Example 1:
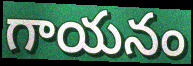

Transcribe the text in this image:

గాయనం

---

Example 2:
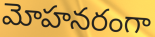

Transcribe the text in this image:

మోహనరంగా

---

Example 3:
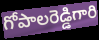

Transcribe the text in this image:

గోపాలరెడ్డిగారి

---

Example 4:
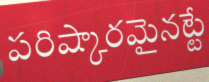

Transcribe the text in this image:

పరిష్కారమైనట్టే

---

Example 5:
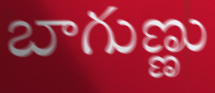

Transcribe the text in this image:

బాగుణ్ణు